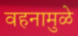
वहनामुळे